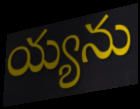
య్యను